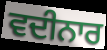
ਵਦੀਨਾਰ